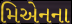
મિએનના